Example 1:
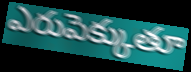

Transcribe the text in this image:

ఎరుపెక్కుతూ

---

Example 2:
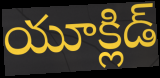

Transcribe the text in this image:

యూక్లిడ్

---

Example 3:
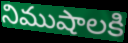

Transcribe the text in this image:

నిముషాలకి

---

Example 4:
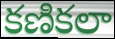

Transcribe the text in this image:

కణికలా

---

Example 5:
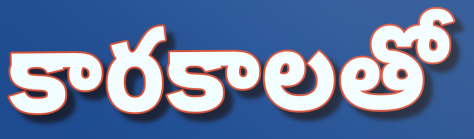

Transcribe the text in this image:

కారకాలతో